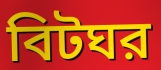
বিটঘর